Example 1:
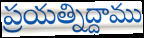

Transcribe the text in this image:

ప్రయత్నిద్దాము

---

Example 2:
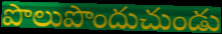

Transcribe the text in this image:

పొలుపొందుచుండు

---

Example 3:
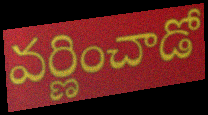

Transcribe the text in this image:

వర్ణించాడో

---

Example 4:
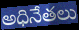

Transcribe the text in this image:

అధినేతలు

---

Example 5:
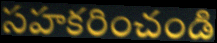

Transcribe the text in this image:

సహకరించండి